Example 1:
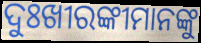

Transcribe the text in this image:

ଦୁଃଖୀରଙ୍କୀମାନଙ୍କୁ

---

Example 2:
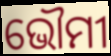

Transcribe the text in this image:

ଭୌମୀ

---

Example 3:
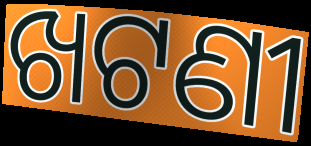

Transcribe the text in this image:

ଖଟଣୀ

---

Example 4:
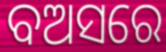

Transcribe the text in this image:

ବଅସରେ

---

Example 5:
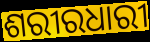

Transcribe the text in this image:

ଶରୀରଧାରୀ